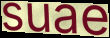
suae